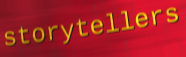
storytellers